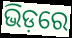
ଭିଡ଼ରେ